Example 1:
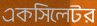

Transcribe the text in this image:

একসিলেটর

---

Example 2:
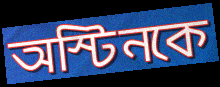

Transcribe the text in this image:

অস্টিনকে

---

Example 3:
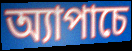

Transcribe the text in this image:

অ্যাপাচে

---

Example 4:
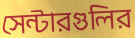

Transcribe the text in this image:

সেন্টারগুলির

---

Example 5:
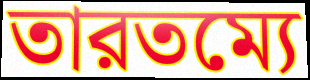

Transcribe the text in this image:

তারতম্যে